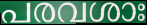
പരവശാഃ